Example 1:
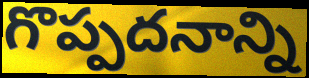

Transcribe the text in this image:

గొప్పదనాన్ని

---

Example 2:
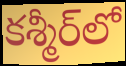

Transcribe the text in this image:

కశ్మీర్‌లో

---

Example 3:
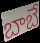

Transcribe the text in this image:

బాబే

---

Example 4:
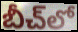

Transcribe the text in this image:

బీచ్‌లో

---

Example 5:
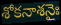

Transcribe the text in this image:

శోకనాశనైః